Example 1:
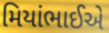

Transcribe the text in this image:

મિયાંભાઈએ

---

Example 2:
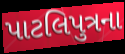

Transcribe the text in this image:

પાટલિપુત્રના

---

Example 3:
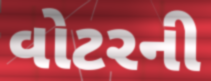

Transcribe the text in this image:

વોટરની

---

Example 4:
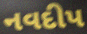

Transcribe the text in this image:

નવદીપ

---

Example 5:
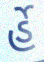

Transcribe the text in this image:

ર્હે